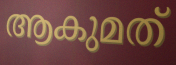
ആകുമത്